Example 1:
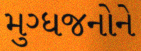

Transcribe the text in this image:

મુગ્ધજનોને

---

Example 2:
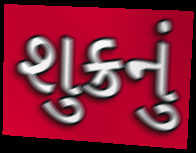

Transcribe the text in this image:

શુક્રનું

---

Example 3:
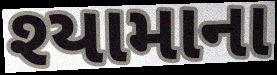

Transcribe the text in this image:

શ્યામાના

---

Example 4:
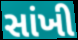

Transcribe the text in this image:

સાંખી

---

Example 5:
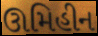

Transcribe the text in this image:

ઊમિહીન